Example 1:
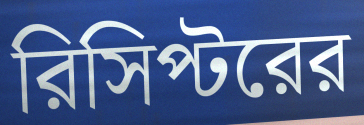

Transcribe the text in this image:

রিসিপ্টরের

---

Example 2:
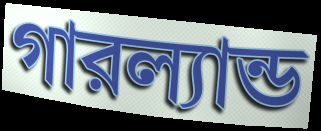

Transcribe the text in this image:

গারল্যান্ড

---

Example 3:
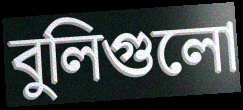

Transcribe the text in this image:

বুলিগুলো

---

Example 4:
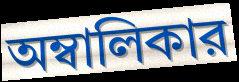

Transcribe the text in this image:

অম্বালিকার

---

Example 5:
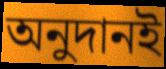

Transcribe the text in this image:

অনুদানই